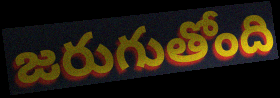
జరుగుతోంది